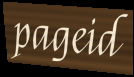
pageid